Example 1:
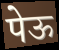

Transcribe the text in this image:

पेऊ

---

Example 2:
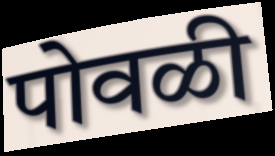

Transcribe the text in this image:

पोवळी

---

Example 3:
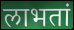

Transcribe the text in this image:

लाभतां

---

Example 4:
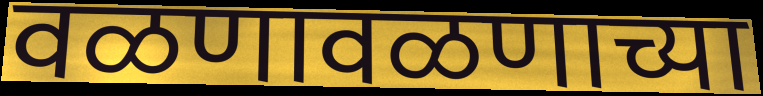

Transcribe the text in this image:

वळणावळणाच्या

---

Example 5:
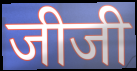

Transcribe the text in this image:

जीजी